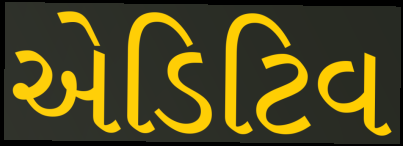
એડિટિવ